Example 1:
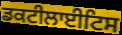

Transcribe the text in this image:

ਡਕਟੀਲਾਈਟਿਸ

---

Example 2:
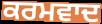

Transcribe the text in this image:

ਕਰਮਵਾਦ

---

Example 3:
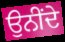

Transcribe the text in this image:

ਉਨੀਂਦੇ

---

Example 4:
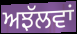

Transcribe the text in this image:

ਅਝੱਲਵਾਂ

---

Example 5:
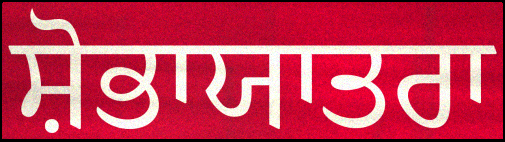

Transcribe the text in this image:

ਸ਼ੋਭਾਯਾਤਰਾ